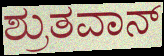
ಶ್ರುತವಾನ್